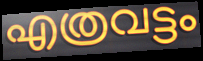
എത്രവട്ടം